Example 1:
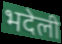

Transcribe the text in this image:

भदेली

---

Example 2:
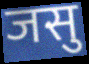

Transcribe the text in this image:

जसु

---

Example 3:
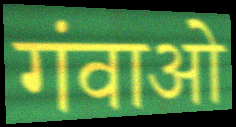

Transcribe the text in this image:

गंवाओ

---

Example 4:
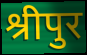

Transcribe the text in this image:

श्रीपुर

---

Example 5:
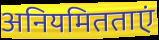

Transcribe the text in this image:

अनियमितताएं